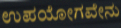
ಉಪಯೋಗವೇನು